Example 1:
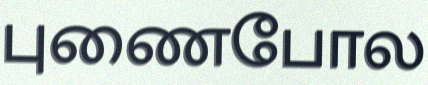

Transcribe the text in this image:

புணைபோல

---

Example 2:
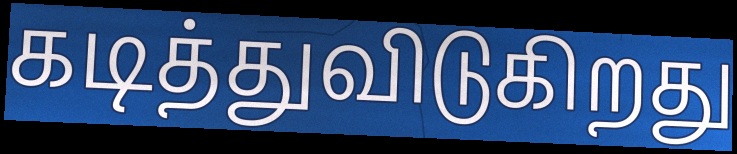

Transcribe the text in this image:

கடித்துவிடுகிறது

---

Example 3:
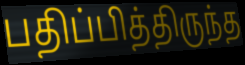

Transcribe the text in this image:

பதிப்பித்திருந்த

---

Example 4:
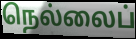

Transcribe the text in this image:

நெல்லைப்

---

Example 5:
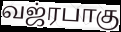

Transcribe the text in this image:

வஜ்ரபாகு